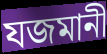
যজমানী